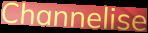
Channelise